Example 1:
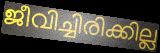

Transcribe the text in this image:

ജീവിച്ചിരിക്കില്ല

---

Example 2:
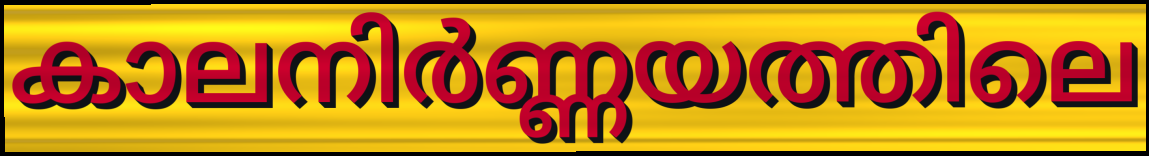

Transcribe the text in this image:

കാലനിർണ്ണയത്തിലെ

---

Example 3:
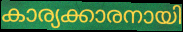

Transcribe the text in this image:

കാര്യക്കാരനായി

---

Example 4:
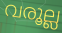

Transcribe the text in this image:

വരൂല്ല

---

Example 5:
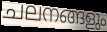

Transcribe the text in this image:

ചലനങ്ങളും